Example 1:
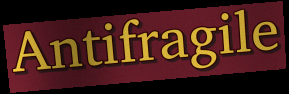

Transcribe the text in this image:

Antifragile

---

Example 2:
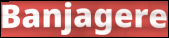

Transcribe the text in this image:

Banjagere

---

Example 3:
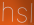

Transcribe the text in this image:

hsl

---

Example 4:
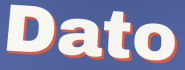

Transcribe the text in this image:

Dato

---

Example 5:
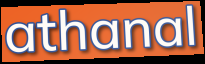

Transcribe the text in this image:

athanal